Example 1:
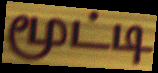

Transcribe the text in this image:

மூட்டி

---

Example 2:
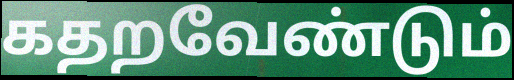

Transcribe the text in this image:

கதறவேண்டும்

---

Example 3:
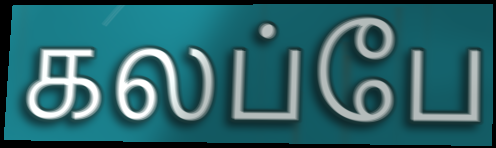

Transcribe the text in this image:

கலப்பே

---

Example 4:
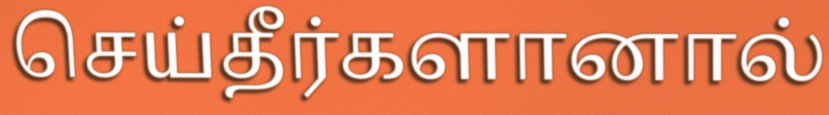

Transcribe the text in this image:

செய்தீர்களானால்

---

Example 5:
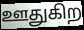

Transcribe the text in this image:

ஊதுகிற